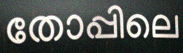
തോപ്പിലെ